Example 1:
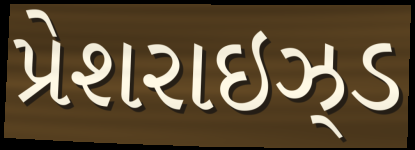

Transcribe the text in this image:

પ્રેશરાઇઝ્ડ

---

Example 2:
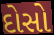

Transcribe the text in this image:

દોસો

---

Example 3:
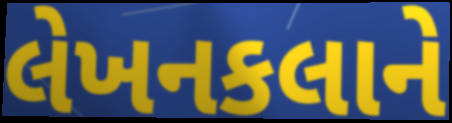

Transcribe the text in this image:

લેખનકલાને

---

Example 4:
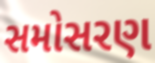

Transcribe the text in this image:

સમોસરણ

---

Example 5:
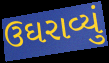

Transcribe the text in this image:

ઉઘરાવ્યું